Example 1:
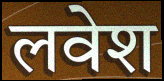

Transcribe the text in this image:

लवेश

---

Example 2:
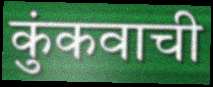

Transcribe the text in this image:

कुंकवाची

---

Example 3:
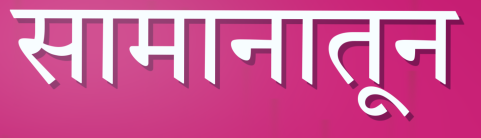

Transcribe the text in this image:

सामानातून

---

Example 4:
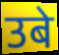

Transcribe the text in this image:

उबे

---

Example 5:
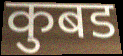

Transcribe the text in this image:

कुबड